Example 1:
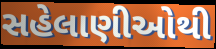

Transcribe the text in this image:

સહેલાણીઓથી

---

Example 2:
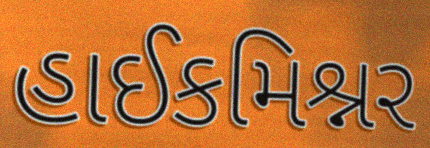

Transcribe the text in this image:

હાઈકમિશ્નર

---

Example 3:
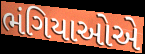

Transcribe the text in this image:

ભંગિયાઓએ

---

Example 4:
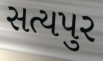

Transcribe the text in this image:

સત્યપુર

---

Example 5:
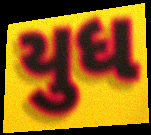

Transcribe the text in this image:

યુધ